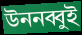
উননব্বুই